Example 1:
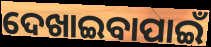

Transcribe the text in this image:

ଦେଖାଇବାପାଇଁ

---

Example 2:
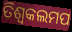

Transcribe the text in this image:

ତିଶ୍ୱକଲମପ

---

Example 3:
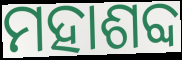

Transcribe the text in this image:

ମହାଶବ୍ଦ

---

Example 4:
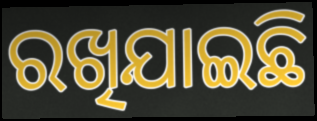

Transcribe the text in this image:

ରଖିଯାଇଛି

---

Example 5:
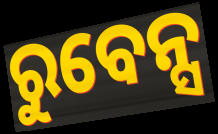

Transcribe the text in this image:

ରୁବେନ୍ସ